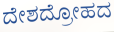
ದೇಶದ್ರೋಹದ